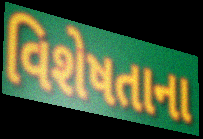
વિશેષતાના